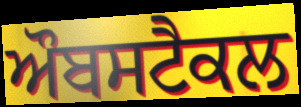
ਔਬਸਟੈਕਲ